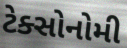
ટેક્સોનોમી